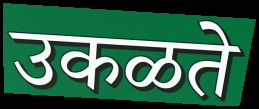
उकळते